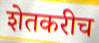
शेतकरीच